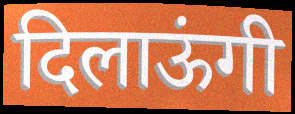
दिलाऊंगी